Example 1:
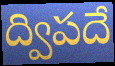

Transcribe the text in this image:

ద్విపదే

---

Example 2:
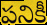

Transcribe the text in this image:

పనికీ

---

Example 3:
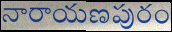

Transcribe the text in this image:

నారాయణపురం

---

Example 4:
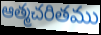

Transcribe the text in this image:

ఆత్మచరితము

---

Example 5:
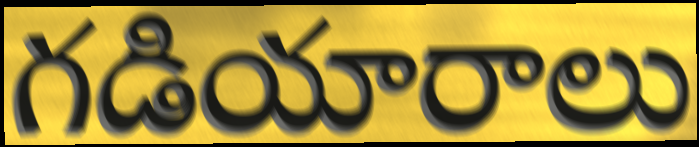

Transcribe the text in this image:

గడియారాలు